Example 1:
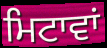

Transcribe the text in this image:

ਮਿਟਾਵਾਂ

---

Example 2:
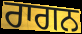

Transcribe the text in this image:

ਰਾਗਨ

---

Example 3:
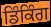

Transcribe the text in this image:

ਡਿੰਕਿੰਗ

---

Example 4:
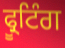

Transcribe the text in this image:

ਫ੍ਰੂਟਿੰਗ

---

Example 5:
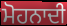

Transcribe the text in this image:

ਮੋਹਨਾਦੀ